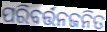
ପରିବର୍ତ୍ତନଜନିତ